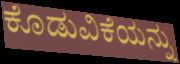
ಕೊಡುವಿಕೆಯನ್ನು